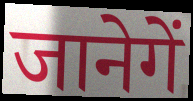
जानेगें